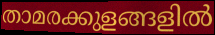
താമരക്കുളങ്ങളിൽ